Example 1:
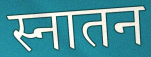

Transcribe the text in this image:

स्नातन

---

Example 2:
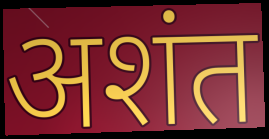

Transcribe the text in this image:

अशंत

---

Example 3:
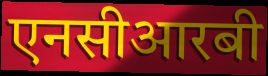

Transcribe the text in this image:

एनसीआरबी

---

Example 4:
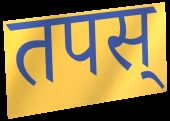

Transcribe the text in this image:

तपस्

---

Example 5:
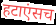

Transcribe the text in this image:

हटाएंसच